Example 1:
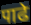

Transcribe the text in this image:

पाढे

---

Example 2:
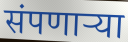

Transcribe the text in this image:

संपणाऱ्या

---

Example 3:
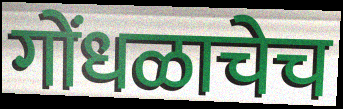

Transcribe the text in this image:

गोंधळाचेच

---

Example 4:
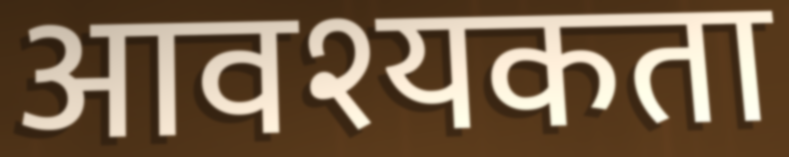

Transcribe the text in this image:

आवश्यकता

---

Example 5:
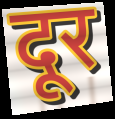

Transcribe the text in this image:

दूर